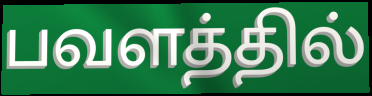
பவளத்தில்